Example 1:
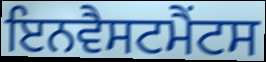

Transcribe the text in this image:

ਇਨਵੈਸਟਮੈਂਟਸ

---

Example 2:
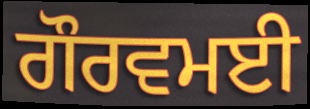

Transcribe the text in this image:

ਗੌਰਵਮਈ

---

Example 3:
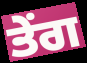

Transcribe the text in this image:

ਤੇਂਗ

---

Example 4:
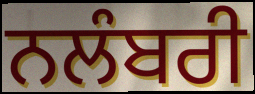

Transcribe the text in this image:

ਨਲੰਬਰੀ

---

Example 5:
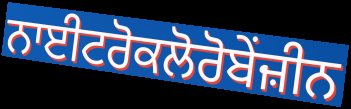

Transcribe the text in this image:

ਨਾਈਟਰੋਕਲੋਰੋਬੇਂਜ਼ੀਨ